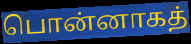
பொன்னாகத்